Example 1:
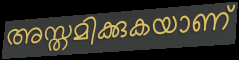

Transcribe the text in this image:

അസ്തമിക്കുകയാണ്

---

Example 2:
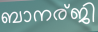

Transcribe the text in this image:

ബാനര്ജി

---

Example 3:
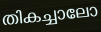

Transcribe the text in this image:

തികച്ചാലോ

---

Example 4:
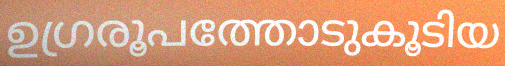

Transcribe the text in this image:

ഉഗ്രരൂപത്തോടുകൂടിയ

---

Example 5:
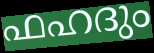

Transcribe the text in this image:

ഫഹദും